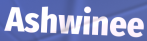
Ashwinee